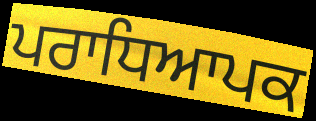
ਪਰਾਧਿਆਪਕ